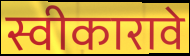
स्वीकारावे